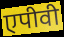
एपीवी